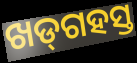
ଖଡ୍‌ଗହସ୍ତ